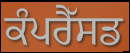
ਕੰਪਰੈੱਸਡ